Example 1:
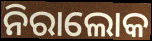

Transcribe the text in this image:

ନିରାଲୋକ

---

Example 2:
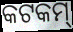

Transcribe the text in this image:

କଟକମ୍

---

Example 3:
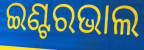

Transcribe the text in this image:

ଇଣ୍ଟରଭାଲ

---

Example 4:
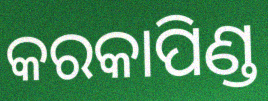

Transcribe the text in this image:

କରକାପିଣ୍ଡ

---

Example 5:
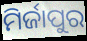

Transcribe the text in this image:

ମିର୍ଜାପୁର